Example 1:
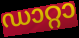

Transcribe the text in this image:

ഡാറ്റാ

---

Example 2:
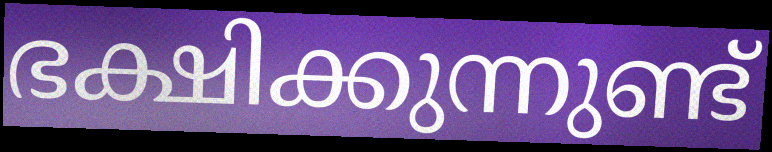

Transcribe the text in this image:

ഭക്ഷിക്കുന്നുണ്ട്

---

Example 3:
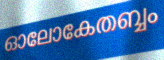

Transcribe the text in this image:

ഓലോകേതബ്ബം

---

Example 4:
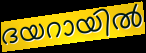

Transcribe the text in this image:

ദയറായിൽ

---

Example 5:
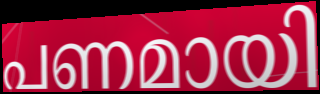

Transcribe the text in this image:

പണമായി